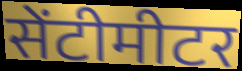
सेंटीमीटर